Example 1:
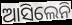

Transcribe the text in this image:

ଆସିଲେନି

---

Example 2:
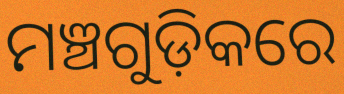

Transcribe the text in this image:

ମଞ୍ଚଗୁଡ଼ିକରେ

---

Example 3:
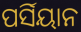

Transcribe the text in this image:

ପର୍ସିୟାନ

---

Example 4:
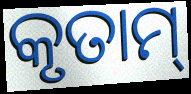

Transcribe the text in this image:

କୃତାମ୍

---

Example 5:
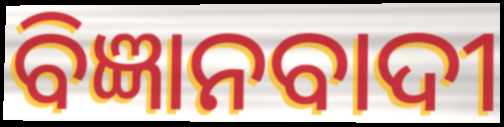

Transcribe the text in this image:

ବିଜ୍ଞାନବାଦୀ